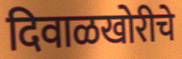
दिवाळखोरीचे